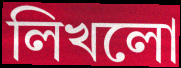
লিখলো